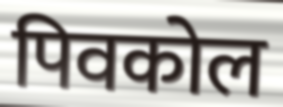
पिवकोल